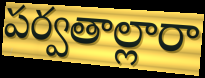
పర్వతాల్లారా